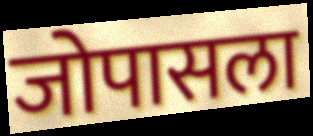
जोपासला